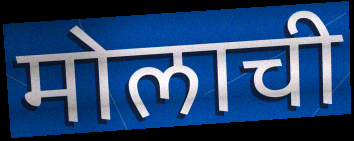
मोलाची